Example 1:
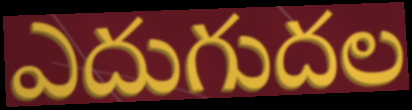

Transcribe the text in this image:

ఎదుగుదల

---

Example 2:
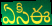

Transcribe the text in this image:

ఏసీఈ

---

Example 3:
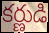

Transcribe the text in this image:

కర్ణుడి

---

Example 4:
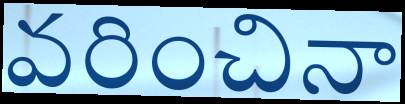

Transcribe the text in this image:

వరించినా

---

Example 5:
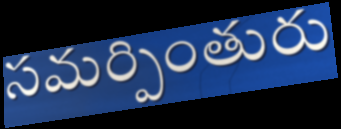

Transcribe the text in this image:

సమర్పింతురు